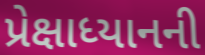
પ્રેક્ષાધ્યાનની